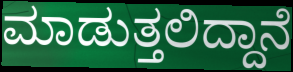
ಮಾಡುತ್ತಲಿದ್ದಾನೆ